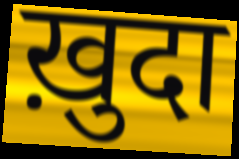
ख़ुदा